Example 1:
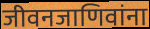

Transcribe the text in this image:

जीवनजाणिवांना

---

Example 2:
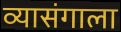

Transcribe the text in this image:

व्यासंगाला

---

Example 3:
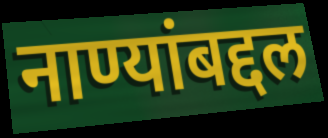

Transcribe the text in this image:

नाण्यांबद्दल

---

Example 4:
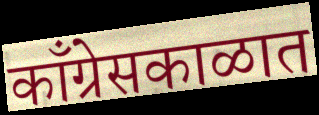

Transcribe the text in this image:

काँग्रेसकाळात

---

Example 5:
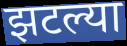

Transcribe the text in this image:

झटल्या